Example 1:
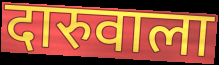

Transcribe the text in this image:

दारुवाला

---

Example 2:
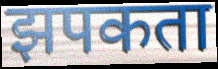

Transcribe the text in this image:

झपकता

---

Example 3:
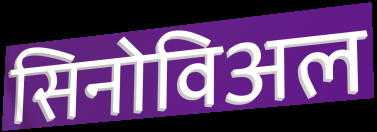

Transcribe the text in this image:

सिनोविअल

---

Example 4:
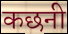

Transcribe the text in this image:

कछनी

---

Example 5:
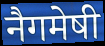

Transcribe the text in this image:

नैगमेषी